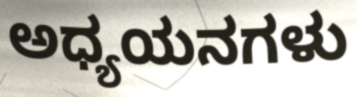
ಅಧ್ಯಯನಗಳು